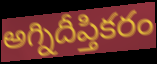
అగ్నిదీప్తికరం